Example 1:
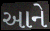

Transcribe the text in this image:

આને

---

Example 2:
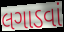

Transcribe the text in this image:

લગાડવાં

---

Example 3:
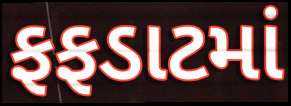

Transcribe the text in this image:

ફફડાટમાં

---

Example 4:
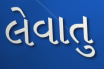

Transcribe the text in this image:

લેવાતુ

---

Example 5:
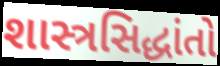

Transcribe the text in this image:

શાસ્ત્રસિદ્ધાંતો